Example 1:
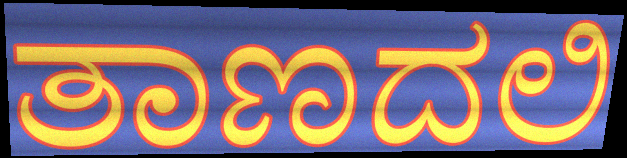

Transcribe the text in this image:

ತಾಣದಲಿ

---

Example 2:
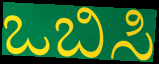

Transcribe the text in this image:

ಒಬಿಸಿ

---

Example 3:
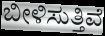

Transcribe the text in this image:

ಬೀಳಿಸುತ್ತಿವೆ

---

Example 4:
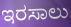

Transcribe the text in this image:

ಇರಸಾಲು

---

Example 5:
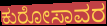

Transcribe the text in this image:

ಕುರೋಸಾವರ